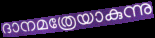
ദാനമത്രേയാകുന്നു